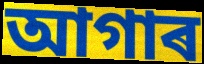
আগাৰ